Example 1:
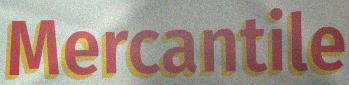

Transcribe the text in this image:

Mercantile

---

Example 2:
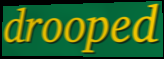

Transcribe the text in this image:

drooped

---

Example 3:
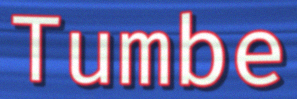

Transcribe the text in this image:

Tumbe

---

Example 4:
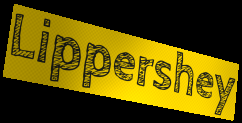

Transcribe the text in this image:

Lippershey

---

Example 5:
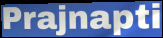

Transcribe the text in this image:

Prajnapti